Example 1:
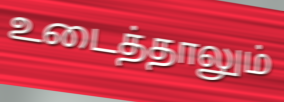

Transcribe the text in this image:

உடைத்தாலும்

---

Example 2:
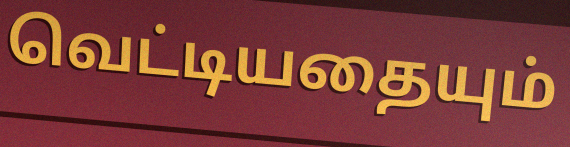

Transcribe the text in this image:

வெட்டியதையும்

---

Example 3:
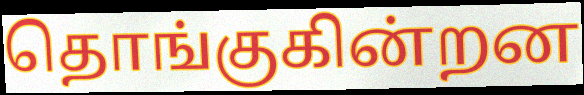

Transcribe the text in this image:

தொங்குகின்றன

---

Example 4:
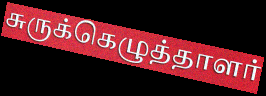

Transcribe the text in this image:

சுருக்கெழுத்தாளர்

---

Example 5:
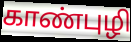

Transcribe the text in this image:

காண்புழி